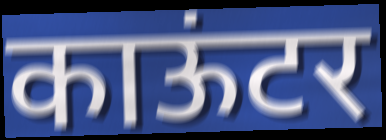
काऊंटर